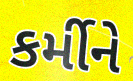
કર્મીને